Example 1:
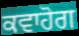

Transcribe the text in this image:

ਕਵਾਹੋਗ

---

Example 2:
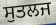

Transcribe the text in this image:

ਸੁਤਲਜ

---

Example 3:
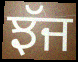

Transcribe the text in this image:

ਝੱਜ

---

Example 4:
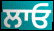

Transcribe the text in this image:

ਲਾਓ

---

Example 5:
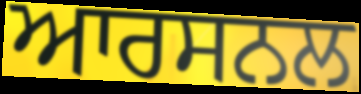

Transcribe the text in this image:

ਆਰਸਨਲ